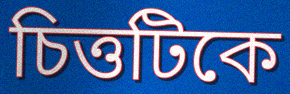
চিত্তটিকে